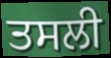
ਤਸਲੀ